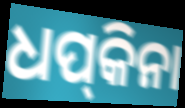
ଧପ୍‍କିନା